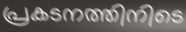
പ്രകടനത്തിനിടെ